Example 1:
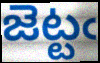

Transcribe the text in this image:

జెట్టఁ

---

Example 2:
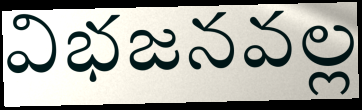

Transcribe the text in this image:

విభజనవల్ల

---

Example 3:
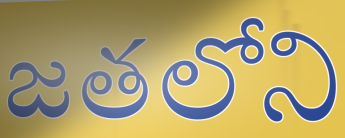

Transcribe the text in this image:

జతలోని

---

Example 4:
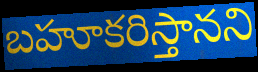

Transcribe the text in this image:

బహూకరిస్తానని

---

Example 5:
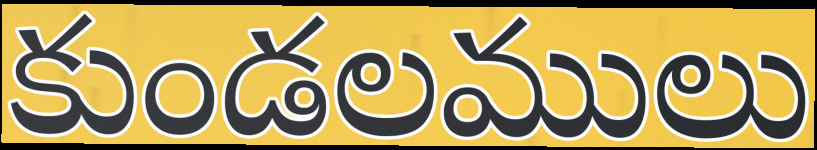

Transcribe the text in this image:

కుండలములు